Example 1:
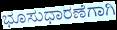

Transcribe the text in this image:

ಭೂಸುಧಾರಣೆಗಾಗಿ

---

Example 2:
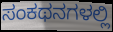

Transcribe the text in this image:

ಸಂಕಥನಗಳಲ್ಲಿ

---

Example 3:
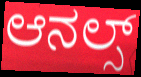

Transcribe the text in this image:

ಆನಲ್ಸ್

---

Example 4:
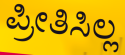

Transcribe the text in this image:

ಪ್ರೀತಿಸಿಲ್ಲ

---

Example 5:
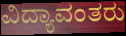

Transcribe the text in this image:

ವಿದ್ಯಾವಂತರು